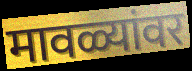
मावळ्यांवर